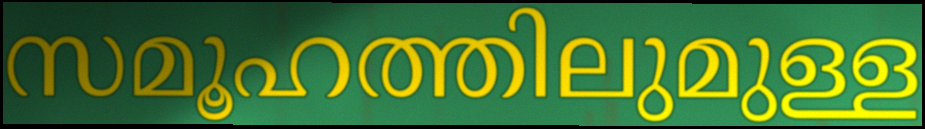
സമൂഹത്തിലുമുള്ള